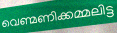
വെണ്മണിക്കമ്മലിട്ട